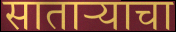
साताऱ्याचा